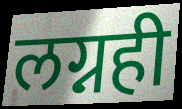
लग्नही